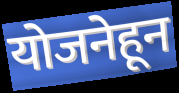
योजनेहून